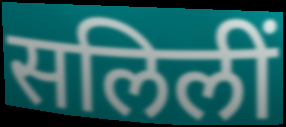
सलिलीं